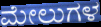
ಮೇಲುಗಳ